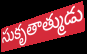
సుకృతాత్ముడు